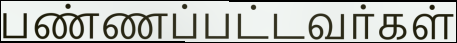
பண்ணப்பட்டவர்கள்